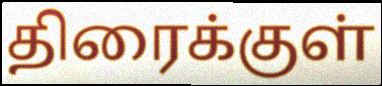
திரைக்குள்